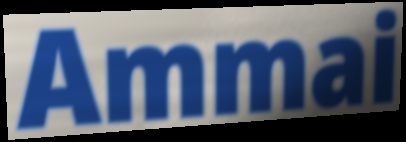
Ammai